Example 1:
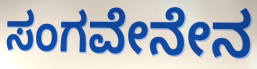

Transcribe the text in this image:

ಸಂಗವೇನೇನ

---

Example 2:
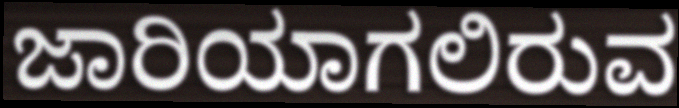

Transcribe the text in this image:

ಜಾರಿಯಾಗಲಿರುವ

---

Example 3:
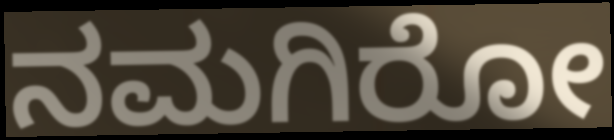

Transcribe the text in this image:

ನಮಗಿರೋ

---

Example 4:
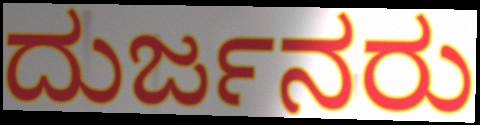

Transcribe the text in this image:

ದುರ್ಜನರು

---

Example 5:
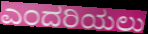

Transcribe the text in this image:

ಎಂದರಿಯಲು